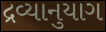
દ્રવ્યાનુયાગ